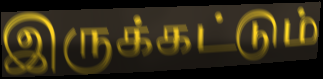
இருக்கட்டும்